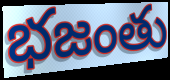
భజంతు